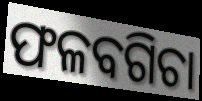
ଫଳବଗିଚା